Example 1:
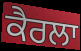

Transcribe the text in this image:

ਕੈਰਲਾ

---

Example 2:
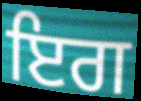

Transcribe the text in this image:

ਇਗ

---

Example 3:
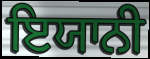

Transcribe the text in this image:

ਇਯਾਨੀ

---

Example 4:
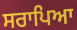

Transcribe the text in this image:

ਸਰਾਪਿਆ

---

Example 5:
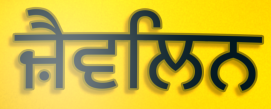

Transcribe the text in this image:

ਜ਼ੈਵਲਿਨ